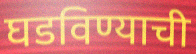
घडविण्याची